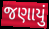
જણાયું